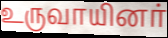
உருவாயினர்